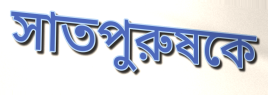
সাতপুরুষকে